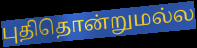
புதிதொன்றுமல்ல